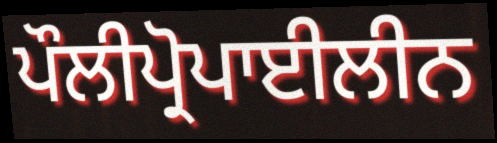
ਪੌਲੀਪ੍ਰੋਪਾਈਲੀਨ